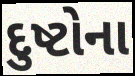
દુષ્ટોના